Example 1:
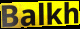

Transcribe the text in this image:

Balkh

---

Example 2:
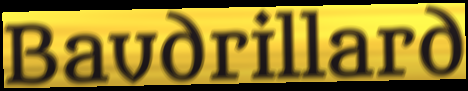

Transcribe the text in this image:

Baudrillard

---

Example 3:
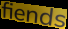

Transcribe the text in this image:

fiends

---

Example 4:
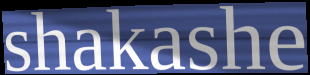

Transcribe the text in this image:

shakashe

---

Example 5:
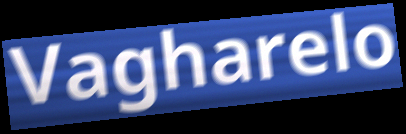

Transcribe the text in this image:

Vagharelo